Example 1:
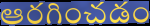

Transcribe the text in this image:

ఆరగించడం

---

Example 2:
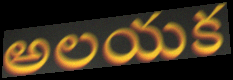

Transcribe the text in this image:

అలయక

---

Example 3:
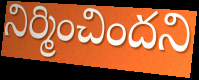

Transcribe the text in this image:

నిర్మించిందని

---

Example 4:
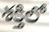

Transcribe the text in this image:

శక్తిలో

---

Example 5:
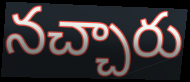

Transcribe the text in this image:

నచ్చారు